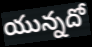
యున్నదో